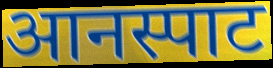
आनस्पाट